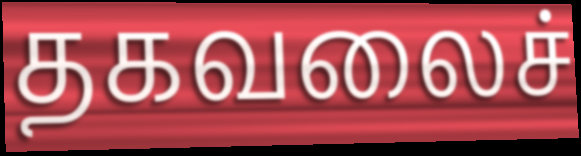
தகவலைச்